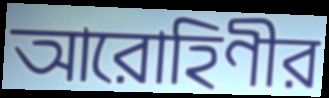
আরোহিণীর